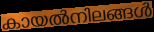
കായൽനിലങ്ങൾ